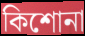
কিশোনা